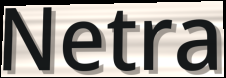
Netra